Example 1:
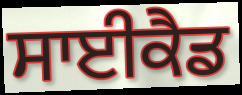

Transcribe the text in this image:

ਸਾਈਕੈਡ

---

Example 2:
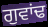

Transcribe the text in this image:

ਗੁਵਾਂਢ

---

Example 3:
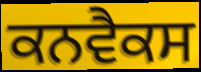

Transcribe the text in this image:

ਕਨਵੈਕਸ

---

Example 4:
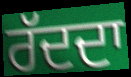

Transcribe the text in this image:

ਰੱਦਦਾ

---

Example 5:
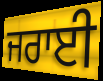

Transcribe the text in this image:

ਜਰਾਈ